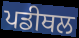
ਪਡੀਥਲ